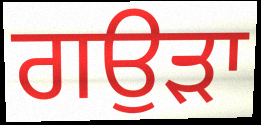
ਗਉੜਾ